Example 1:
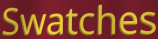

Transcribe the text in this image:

Swatches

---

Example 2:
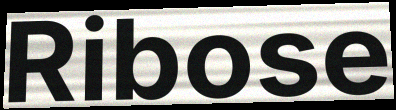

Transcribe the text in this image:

Ribose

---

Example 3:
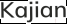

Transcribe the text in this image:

Kajian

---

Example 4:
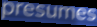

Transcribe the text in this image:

presumes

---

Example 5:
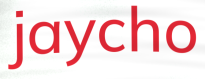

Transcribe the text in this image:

jaycho